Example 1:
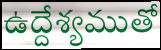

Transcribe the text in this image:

ఉద్దేశ్యముతో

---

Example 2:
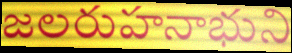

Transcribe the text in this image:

జలరుహనాభుని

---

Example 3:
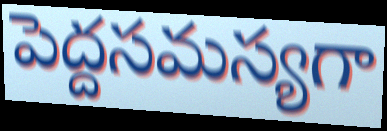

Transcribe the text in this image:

పెద్దసమస్యగా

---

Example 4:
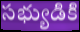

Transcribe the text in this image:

సభ్యుడికి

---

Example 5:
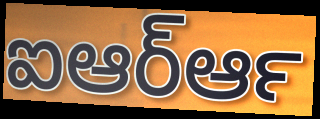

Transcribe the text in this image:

ఐఆర్ఆర్‍